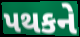
પથકને